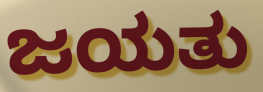
ಜಯತು